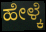
ಹೇಳ್ಕೆ